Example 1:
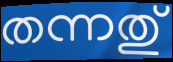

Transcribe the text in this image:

തന്നതു്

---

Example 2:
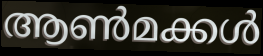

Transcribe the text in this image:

ആൺമക്കൾ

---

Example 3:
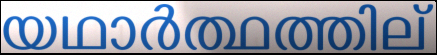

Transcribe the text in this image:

യഥാർത്ഥത്തില്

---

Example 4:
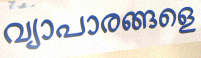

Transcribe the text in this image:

വ്യാപാരങ്ങളെ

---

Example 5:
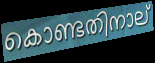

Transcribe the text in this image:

കൊണ്ടതിനാല്